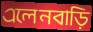
এলেনবাড়ি